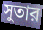
সুতার